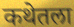
कथेतला